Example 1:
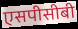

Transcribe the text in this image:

एसपीसीबी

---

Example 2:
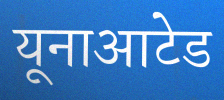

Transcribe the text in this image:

यूनाआटेड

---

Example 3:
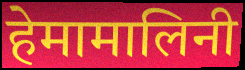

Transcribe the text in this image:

हेमामालिनी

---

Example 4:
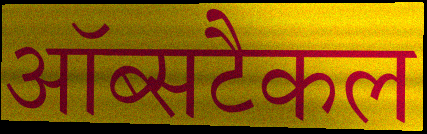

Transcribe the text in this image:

ऑब्सटैकल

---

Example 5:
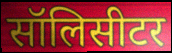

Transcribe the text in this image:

सॉलिसीटर